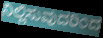
ನಿಲ್ಲಿಸುವುದರಿಂದ